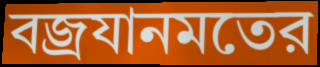
বজ্রযানমতের